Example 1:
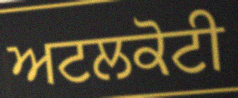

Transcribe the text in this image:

ਅਟਲਕੋਟੀ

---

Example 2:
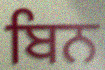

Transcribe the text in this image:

ਬਿਨ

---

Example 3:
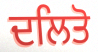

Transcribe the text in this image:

ਦਲਿਤੋ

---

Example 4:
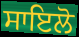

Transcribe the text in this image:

ਸਾਇਲੋ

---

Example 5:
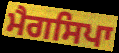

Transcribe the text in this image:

ਮੈਗਸਿਪਾ